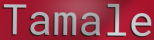
Tamale